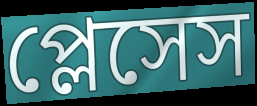
প্লেসেস